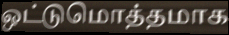
ஒட்டுமொத்தமாக